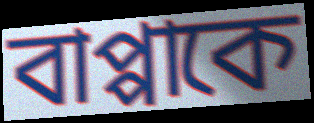
বাপ্পাকে